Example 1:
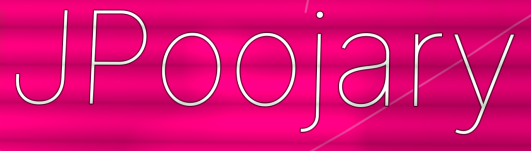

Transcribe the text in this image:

JPoojary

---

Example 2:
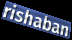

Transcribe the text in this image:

rishaban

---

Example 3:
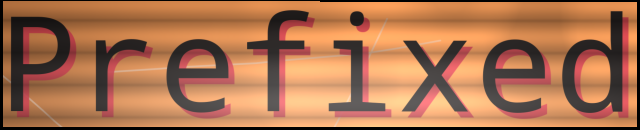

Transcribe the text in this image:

Prefixed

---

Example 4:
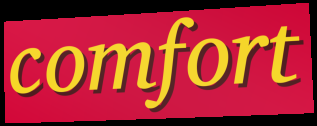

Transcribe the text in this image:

comfort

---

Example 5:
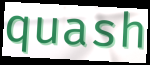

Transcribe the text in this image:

quash